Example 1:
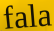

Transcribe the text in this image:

fala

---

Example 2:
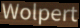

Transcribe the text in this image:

Wolpert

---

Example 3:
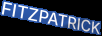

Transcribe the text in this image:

FITZPATRICK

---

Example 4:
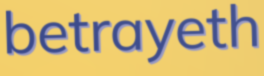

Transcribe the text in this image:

betrayeth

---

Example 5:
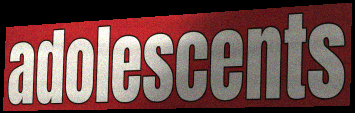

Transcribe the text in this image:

adolescents